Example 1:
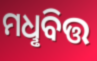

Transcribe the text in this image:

ମଧୢବିତ୍ତ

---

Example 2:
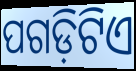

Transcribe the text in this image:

ପଗଡ଼ିଟିଏ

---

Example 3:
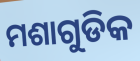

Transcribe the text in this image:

ମଶାଗୁଡିକ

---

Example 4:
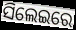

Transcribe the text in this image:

ସିଲେଇରେ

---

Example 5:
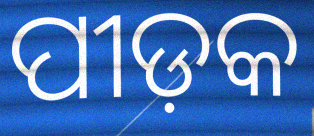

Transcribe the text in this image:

ପୀଡ଼କ